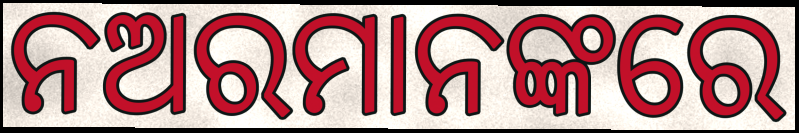
ନଅରମାନଙ୍କରେ